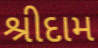
શ્રીદામ